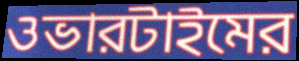
ওভারটাইমের